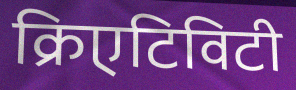
क्रिएटिविटी